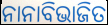
ନାନାବିଭାଜିତ